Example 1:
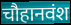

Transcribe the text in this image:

चौहानवंश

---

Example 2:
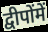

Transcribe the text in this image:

द्वीपोंमें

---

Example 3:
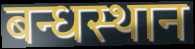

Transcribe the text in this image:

बन्धस्थान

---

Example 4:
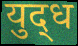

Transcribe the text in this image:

युद्‍ध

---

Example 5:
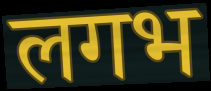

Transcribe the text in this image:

लगभ